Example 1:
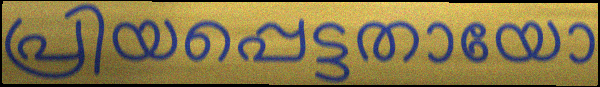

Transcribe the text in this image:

പ്രിയപ്പെട്ടതായോ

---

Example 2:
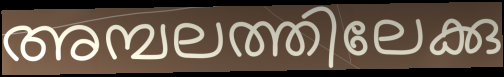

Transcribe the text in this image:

അമ്പലത്തിലേക്കു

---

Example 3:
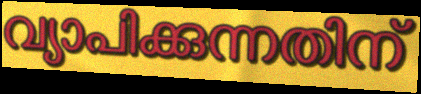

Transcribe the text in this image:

വ്യാപിക്കുന്നതിന്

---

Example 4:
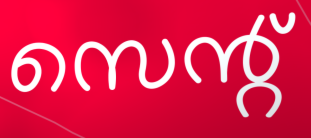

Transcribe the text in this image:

സെന്റ്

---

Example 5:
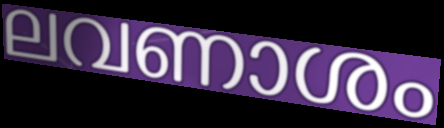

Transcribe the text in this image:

ലവണാശം